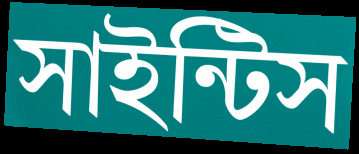
সাইন্টিস